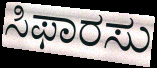
ಸಿಫಾರಸು